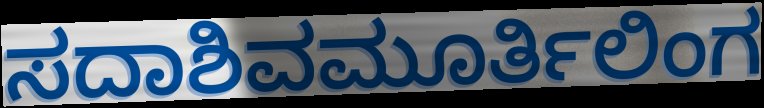
ಸದಾಶಿವಮೂರ್ತಿಲಿಂಗ